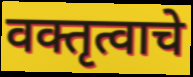
वक्तृत्वाचे